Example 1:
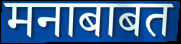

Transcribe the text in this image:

मनाबाबत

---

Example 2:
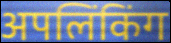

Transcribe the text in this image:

अपलिंकिंग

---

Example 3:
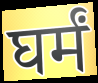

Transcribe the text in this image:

घर्मं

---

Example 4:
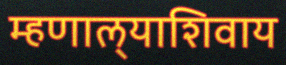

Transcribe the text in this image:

म्हणाल्याशिवाय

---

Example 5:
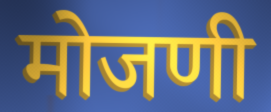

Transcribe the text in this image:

मोजणी